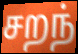
சறந்